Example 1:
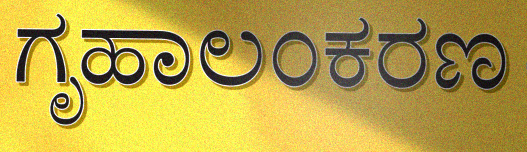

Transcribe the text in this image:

ಗೃಹಾಲಂಕರಣ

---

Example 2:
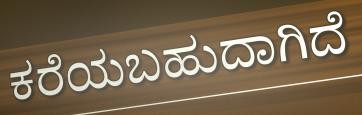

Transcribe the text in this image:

ಕರೆಯಬಹುದಾಗಿದೆ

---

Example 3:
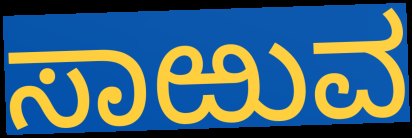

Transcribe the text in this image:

ಸಾಱುವ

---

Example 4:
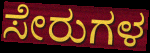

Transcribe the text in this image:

ಸೇರುಗಳ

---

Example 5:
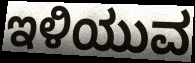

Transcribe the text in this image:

ಇಳಿಯುವ